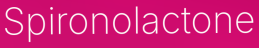
Spironolactone